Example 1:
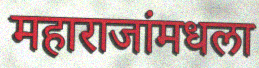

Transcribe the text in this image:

महाराजांमधला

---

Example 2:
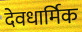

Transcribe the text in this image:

देवधार्मिक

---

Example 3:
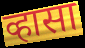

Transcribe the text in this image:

व्हासा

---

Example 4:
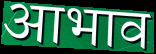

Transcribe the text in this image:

आभाव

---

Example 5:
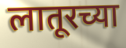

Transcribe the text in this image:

लातूरच्या